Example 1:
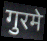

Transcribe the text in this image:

गुरमे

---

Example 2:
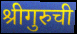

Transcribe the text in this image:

श्रीगुरुची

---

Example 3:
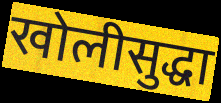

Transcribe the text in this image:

खोलीसुद्धा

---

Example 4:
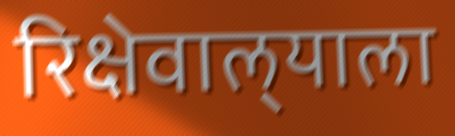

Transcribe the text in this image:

रिक्षेवाल्याला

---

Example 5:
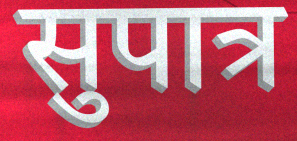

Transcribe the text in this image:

सुपात्र